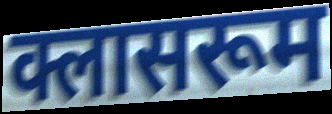
क्लासरूम